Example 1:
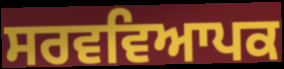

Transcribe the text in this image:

ਸਰਵਵਿਆਪਕ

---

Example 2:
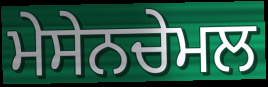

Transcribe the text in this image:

ਮੇਸੇਨਚੇਮਲ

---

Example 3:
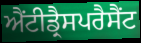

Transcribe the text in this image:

ਐਂਟੀਡ੍ਰੈਸਪਰੈਸੈਂਟ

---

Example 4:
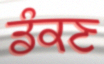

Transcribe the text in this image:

ਡੰਕਣ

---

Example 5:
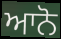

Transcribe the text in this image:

ਆਨੋ